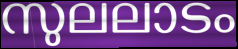
സുലലാടം